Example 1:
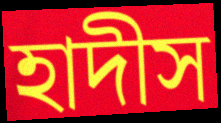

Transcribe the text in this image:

হাদীস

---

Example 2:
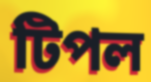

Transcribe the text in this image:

টিপল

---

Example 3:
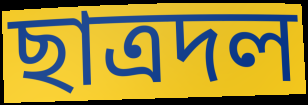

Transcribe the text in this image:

ছাত্রদল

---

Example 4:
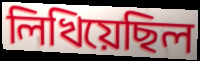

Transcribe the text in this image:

লিখিয়েছিল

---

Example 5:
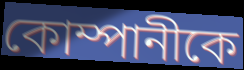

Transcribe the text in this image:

কোম্পানীকে